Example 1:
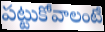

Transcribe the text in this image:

పట్టుకోవాలంటే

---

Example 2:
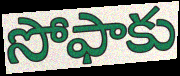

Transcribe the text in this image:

సోఫాకు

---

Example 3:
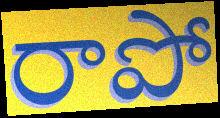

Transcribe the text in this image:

రాపో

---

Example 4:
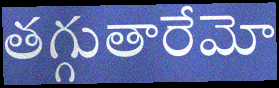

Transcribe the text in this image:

తగ్గుతారేమో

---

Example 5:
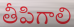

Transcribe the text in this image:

తీపిగాలి